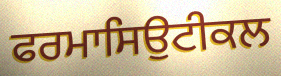
ਫਰਮਾਸਿਉਟੀਕਲ